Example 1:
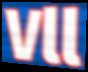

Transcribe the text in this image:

Vll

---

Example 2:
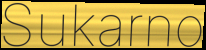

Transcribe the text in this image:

Sukarno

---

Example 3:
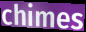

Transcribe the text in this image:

chimes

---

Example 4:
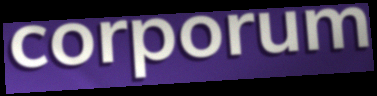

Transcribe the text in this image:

corporum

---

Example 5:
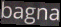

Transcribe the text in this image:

bagna